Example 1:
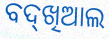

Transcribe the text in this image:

ବଦ୍‌ଖିଆଲ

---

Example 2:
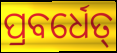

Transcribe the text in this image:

ପ୍ରବର୍ଧେତ୍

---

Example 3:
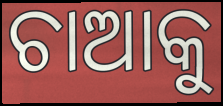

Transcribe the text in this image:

ଚାଆକୁ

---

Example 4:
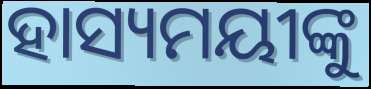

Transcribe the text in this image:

ହାସ୍ୟମୟୀଙ୍କୁ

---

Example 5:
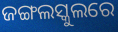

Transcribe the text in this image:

ଜଙ୍ଗଲସ୍କୁଲରେ